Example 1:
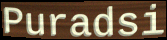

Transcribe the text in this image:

Puradsi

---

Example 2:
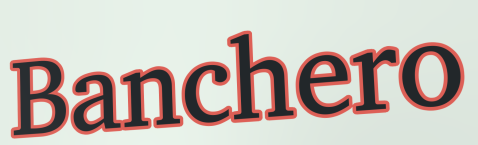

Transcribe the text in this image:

Banchero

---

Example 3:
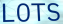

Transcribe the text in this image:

LOTS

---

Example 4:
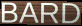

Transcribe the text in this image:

BARD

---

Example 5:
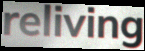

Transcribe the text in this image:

reliving